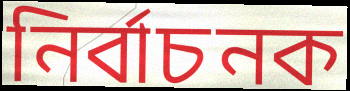
নিৰ্বাচনক